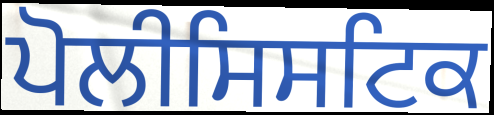
ਪੋਲੀਸਿਸਟਿਕ